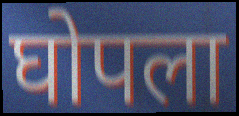
घोपला